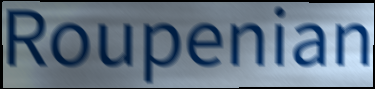
Roupenian